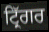
ਟ੍ਰਿੱਗਰ